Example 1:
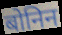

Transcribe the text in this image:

बोनिन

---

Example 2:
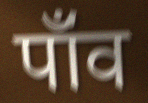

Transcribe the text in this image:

पांँव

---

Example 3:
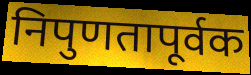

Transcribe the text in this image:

निपुणतापूर्वक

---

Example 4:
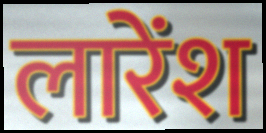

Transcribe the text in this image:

लारेंश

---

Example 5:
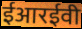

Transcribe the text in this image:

ईआरईवी